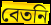
বেতনি